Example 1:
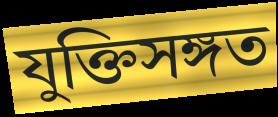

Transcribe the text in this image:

যুক্তিসঙ্গত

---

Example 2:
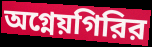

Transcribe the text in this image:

অগ্নেয়গিরির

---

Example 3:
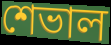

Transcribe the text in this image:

শেভাল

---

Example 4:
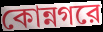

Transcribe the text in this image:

কোন্নগরে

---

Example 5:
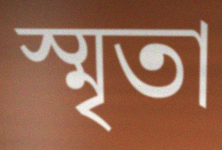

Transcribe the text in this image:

স্মৃতা